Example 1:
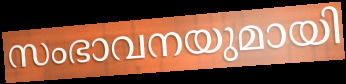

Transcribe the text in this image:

സംഭാവനയുമായി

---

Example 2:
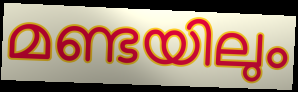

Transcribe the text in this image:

മണ്ടയിലും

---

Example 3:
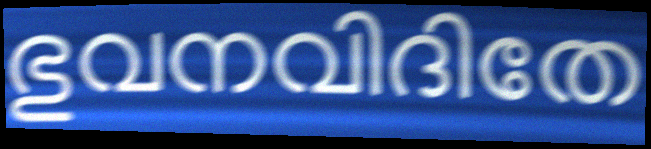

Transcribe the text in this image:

ഭുവനവിദിതേ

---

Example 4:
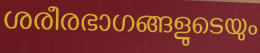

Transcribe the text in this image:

ശരീരഭാഗങ്ങളുടെയും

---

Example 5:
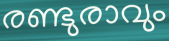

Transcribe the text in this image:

രണ്ടുരാവും